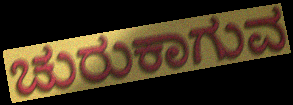
ಚುರುಕಾಗುವ